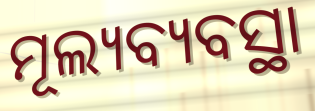
ମୂଲ୍ୟବ୍ୟବସ୍ଥା